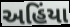
અહિંયા